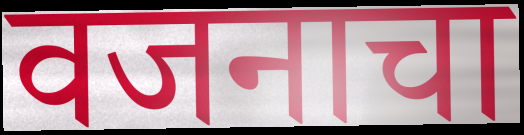
वजनाचा